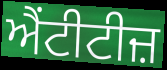
ਐਂਟੀਟੀਜ਼